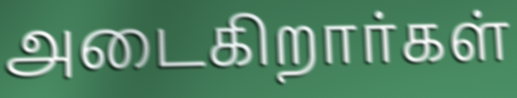
அடைகிறார்கள்